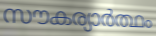
സൗകര്യാർത്ഥം